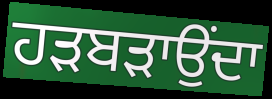
ਹੜਬੜਾਉਂਦਾ